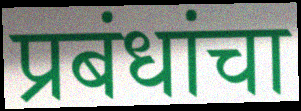
प्रबंधांचा